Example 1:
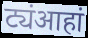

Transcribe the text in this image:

ट्यंआहां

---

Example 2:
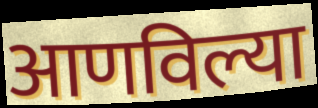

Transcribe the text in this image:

आणविल्या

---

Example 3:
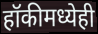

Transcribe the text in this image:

हॉकीमध्येही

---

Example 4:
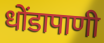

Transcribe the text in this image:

धोंडापाणी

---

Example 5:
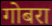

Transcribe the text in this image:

गोबरा